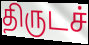
திருடச்